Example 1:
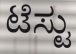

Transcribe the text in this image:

ಟೆಸ್ಟು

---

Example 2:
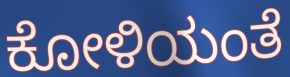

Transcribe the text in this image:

ಕೋಳಿಯಂತೆ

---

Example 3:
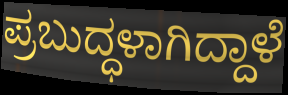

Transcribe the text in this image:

ಪ್ರಬುದ್ಧಳಾಗಿದ್ದಾಳೆ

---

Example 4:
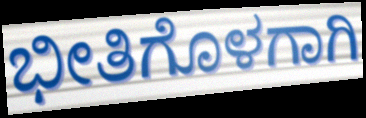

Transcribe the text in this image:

ಭೀತಿಗೊಳಗಾಗಿ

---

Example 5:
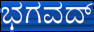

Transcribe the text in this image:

ಭಗವದ್